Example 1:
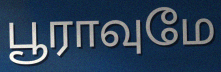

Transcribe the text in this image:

பூராவுமே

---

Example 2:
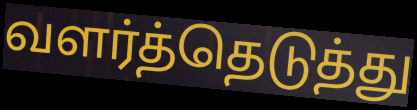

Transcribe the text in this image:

வளர்த்தெடுத்து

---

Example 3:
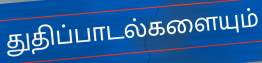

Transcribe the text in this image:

துதிப்பாடல்களையும்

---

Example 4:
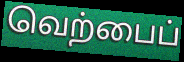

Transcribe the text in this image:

வெற்பைப்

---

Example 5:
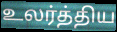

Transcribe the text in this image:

உலர்த்திய